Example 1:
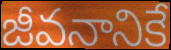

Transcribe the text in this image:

జీవనానికే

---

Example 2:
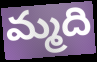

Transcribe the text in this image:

మ్మది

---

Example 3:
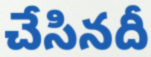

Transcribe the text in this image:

చేసినదీ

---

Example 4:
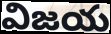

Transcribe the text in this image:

విజయ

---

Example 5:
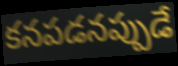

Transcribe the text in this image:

కనపడనప్పుడే